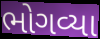
ભોગવ્યા